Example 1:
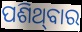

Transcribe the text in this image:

ପଶିଥ୍‌ବାର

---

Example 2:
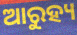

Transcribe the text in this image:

ଆରୁହ୍ୟ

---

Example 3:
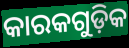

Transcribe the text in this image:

କାରକଗୁଡ଼ିକ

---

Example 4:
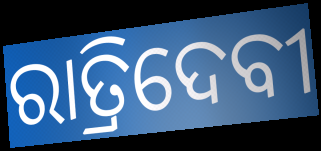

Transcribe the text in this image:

ରାତ୍ରିଦେବୀ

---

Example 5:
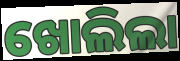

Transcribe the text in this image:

ଖୋଲିଲା